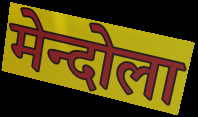
मेन्दोला